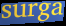
surga